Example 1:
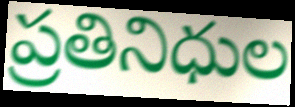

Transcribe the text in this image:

ప్రతినిధుల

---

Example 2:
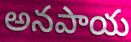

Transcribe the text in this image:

అనపాయ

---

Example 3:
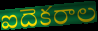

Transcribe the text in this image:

ఐదెకరాల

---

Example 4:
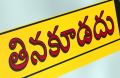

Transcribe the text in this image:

తినకూడదు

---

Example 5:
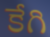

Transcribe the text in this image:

కేగి